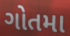
ગોતમા